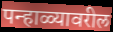
पन्हाळ्यावरील